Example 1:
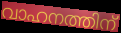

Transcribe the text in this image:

വാഹനത്തിന്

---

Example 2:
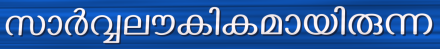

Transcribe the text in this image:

സാർവ്വലൗകികമായിരുന്ന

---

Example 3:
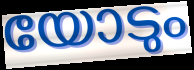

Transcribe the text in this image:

യോടും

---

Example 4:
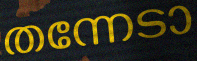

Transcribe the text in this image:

തന്നേടാ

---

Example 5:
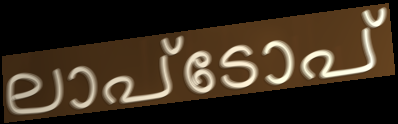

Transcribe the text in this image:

ലാപ്ടോപ്